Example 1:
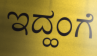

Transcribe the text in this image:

ಇದ್ಹಂಗೆ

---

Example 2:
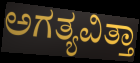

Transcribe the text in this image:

ಅಗತ್ಯವಿತ್ತಾ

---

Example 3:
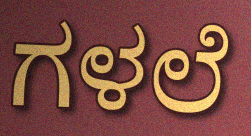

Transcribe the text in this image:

ಗಳಲೆ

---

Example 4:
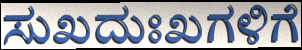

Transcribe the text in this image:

ಸುಖದುಃಖಗಳಿಗೆ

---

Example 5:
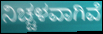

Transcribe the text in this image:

ನಿಚ್ಚಳವಾಗಿವೆ